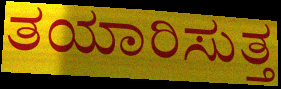
ತಯಾರಿಸುತ್ತ